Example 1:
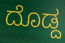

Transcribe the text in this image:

ದೊಡ್ದ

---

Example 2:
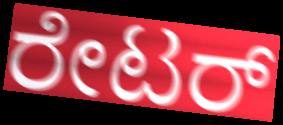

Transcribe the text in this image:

ರೇಟರ್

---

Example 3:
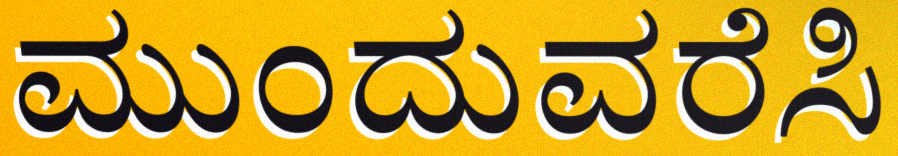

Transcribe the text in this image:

ಮುಂದುವರೆಸಿ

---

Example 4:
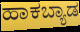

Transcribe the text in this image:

ಹಾಕಬ್ಯಾಡ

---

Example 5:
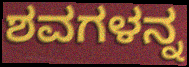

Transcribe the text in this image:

ಶವಗಳನ್ನ